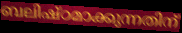
ബലിഷ്ഠമാക്കുന്നതിന്